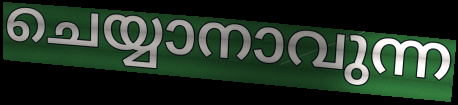
ചെയ്യാനാവുന്ന